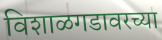
विशाळगडावरच्या